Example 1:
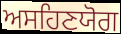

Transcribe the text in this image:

ਅਸਹਿਣਯੋਗ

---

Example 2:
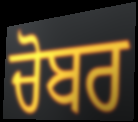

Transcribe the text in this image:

ਚੋਬਰ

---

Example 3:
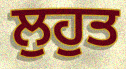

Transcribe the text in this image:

ਲੁਹੁਤ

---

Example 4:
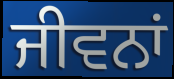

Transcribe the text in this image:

ਜੀਵਨਾਂ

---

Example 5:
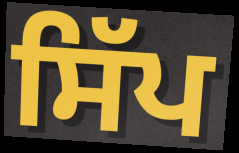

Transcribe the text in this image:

ਸਿੱਪ